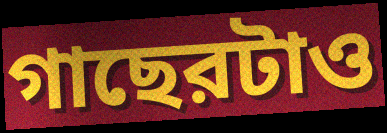
গাছেরটাও